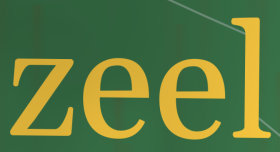
zeel